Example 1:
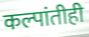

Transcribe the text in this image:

कल्पांतीही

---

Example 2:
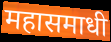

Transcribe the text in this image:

महासमाधी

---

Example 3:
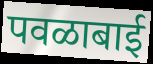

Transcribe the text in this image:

पवळाबाई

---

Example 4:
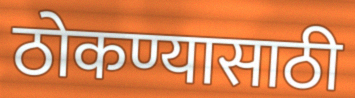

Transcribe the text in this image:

ठोकण्यासाठी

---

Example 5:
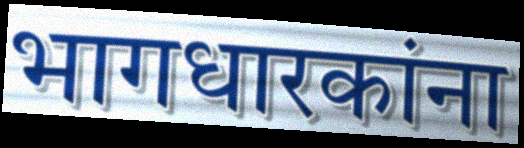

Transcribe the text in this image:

भागधारकांना